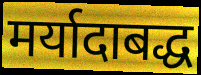
मर्यादाबद्ध